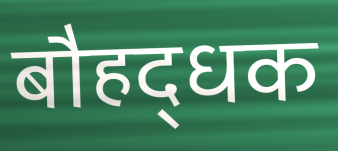
बौहद्धक